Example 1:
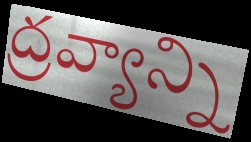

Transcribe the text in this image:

ద్రవ్యాన్ని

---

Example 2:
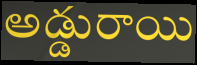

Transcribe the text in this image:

అడ్డురాయి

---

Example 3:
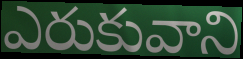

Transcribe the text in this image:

ఎరుకువాని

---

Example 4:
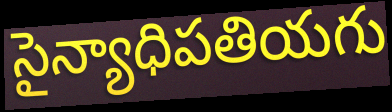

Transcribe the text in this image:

సైన్యాధిపతియగు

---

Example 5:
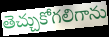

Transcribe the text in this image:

తెచ్చుకోగలిగాను